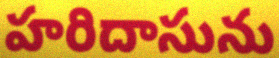
హరిదాసును